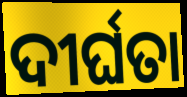
ଦୀର୍ଘତା